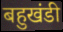
बहुखंडी